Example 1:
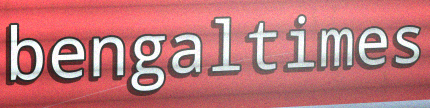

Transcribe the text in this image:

bengaltimes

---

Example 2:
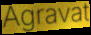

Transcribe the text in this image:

Agravat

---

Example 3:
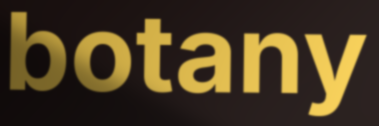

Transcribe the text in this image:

botany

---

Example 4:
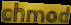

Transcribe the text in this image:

chmod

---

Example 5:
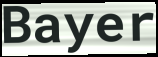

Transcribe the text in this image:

Bayer